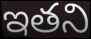
ఇతని